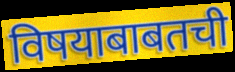
विषयाबाबतची